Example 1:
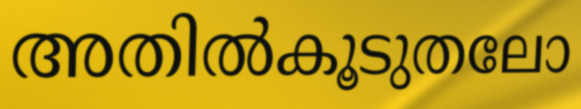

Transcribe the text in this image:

അതിൽകൂടുതലോ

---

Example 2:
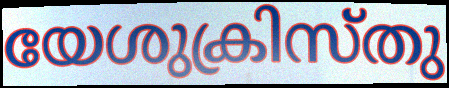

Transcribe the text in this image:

യേശുക്രിസ്തു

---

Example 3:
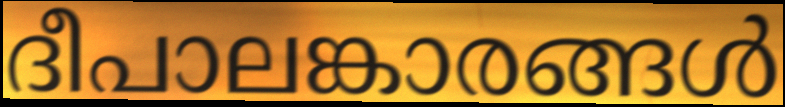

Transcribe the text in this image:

ദീപാലങ്കാരങ്ങൾ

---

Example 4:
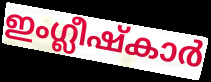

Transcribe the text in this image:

ഇംഗ്ലീഷ്കാർ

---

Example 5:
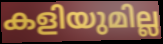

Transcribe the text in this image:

കളിയുമില്ല